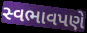
સ્વભાવપણે